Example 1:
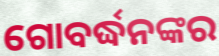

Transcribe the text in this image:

ଗୋବର୍ଦ୍ଧନଙ୍କର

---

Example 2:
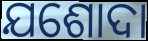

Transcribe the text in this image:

ଯଶୋଦା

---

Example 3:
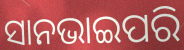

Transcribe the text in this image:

ସାନଭାଇପରି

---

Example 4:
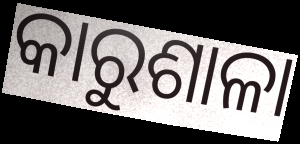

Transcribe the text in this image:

କାରୁଶାଳା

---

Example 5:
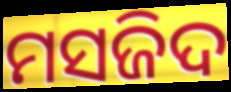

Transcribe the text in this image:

ମସଜିଦ